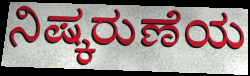
ನಿಷ್ಕರುಣೆಯ